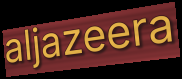
aljazeera